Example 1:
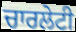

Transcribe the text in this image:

ਚਾਰਲੇਟੀ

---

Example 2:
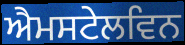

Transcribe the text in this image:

ਐਮਸਟੇਲਵਿਨ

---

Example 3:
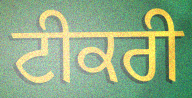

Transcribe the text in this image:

ਟੀਕਰੀ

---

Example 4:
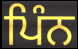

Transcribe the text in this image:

ਪਿੰਨ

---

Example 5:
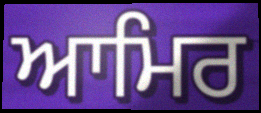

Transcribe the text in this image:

ਆਮਿਰ